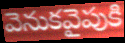
వెనుకవైపుకి